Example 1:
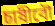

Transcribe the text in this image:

চাষীবৌ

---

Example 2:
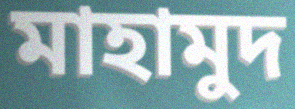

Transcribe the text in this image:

মাহামুদ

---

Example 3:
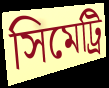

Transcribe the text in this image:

সিমেট্রি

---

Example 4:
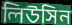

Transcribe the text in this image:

লিউসিন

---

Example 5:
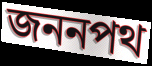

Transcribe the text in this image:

জননপথ